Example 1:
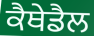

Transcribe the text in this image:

ਕੈਥੇਡੈਲ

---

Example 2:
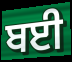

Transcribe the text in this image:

ਬਈ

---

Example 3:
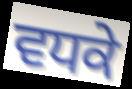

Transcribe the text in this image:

ਵਧਕੇ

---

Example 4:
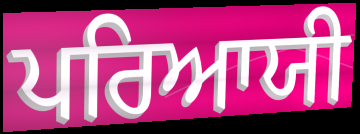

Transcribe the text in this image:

ਪਰਿਆਯੀ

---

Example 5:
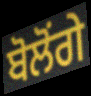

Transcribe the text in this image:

ਬੋਲੋਂਗੇ